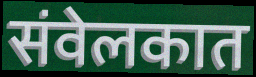
संवेलकात